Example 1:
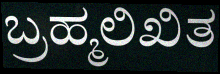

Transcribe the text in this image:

ಬ್ರಹ್ಮಲಿಖಿತ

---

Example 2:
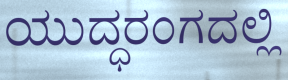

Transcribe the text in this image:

ಯುದ್ಧರಂಗದಲ್ಲಿ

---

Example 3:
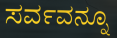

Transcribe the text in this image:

ಸರ್ವವನ್ನೂ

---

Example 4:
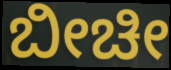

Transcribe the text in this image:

ಬೀಚೀ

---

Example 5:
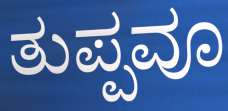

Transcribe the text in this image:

ತುಪ್ಪವೂ